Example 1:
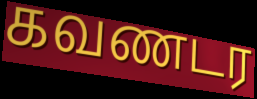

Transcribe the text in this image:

கவணடர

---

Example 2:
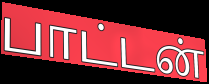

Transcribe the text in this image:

பாட்டன்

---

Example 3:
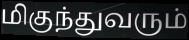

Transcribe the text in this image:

மிகுந்துவரும்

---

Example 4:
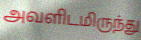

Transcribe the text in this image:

அவளிடமிருந்து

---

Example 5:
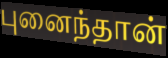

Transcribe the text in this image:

புனைந்தான்